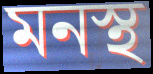
মনস্থ